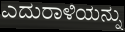
ಎದುರಾಳಿಯನ್ನು